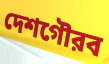
দেশগৌরব